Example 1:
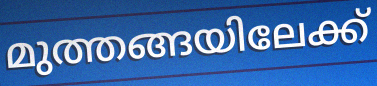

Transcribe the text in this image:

മുത്തങ്ങയിലേക്ക്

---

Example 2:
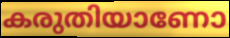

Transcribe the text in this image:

കരുതിയാണോ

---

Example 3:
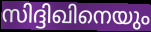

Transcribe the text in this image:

സിദ്ദിഖിനെയും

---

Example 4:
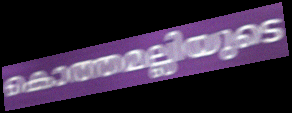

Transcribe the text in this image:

കൊത്തമല്ലിയുടെ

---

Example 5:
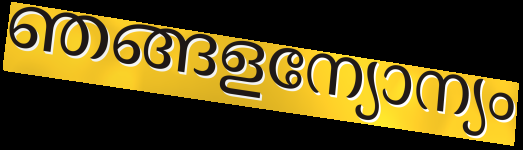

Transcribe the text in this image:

ഞങ്ങളന്യോന്യം